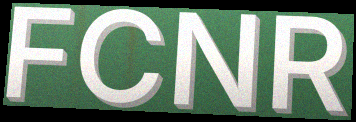
FCNR